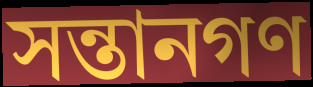
সন্তানগণ